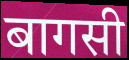
बागसी